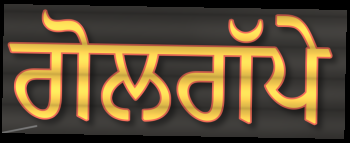
ਗੋਲਗੱਪੇ